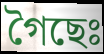
গৈছেঃ